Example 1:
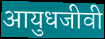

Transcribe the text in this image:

आयुधजीवी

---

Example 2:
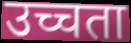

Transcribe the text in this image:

उच्चता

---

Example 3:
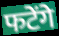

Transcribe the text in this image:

फटेंगे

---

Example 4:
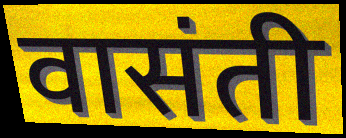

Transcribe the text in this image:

वासंती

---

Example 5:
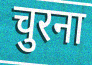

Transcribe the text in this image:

चुरना